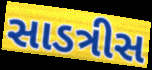
સાડત્રીસ